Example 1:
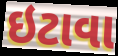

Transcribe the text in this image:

ઇટાવા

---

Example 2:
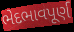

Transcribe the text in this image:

ભેદભાવપૂર્ણ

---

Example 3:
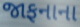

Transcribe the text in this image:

જાફનાના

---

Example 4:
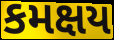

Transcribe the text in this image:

કમક્ષય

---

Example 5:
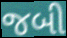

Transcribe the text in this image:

જબી